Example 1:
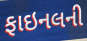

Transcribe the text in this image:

ફાઇનલની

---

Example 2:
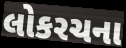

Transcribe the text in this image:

લોકરચના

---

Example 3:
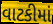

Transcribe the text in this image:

વાટકીમાં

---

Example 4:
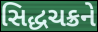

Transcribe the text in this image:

સિદ્ધચક્રને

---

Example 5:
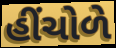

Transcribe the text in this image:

હીંચોળે